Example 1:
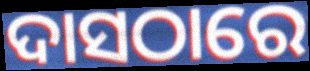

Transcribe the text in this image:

ଦାସଠାରେ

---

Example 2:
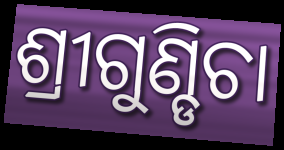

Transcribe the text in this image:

ଶ୍ରୀଗୁଣ୍ଡିଚା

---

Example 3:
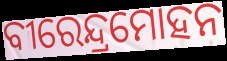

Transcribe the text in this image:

ବୀରେନ୍ଦ୍ରମୋହନ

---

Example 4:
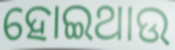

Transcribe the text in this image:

ହୋଇଥାଉ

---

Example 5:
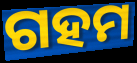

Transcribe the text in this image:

ଗହମ